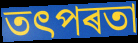
তৎপৰতা